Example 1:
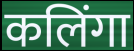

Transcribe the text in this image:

कलिंगा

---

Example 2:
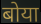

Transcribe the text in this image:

बोया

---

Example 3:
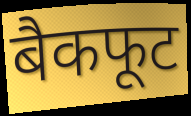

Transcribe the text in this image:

बैकफूट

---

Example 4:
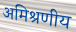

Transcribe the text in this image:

अमिश्रणीय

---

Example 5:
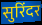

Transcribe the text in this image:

सुरिंदर